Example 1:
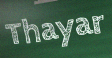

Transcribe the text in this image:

Thayar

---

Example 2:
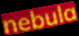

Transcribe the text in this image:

nebula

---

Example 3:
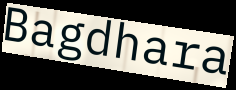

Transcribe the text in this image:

Bagdhara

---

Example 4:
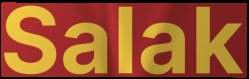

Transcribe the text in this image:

Salak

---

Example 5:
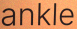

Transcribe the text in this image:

ankle